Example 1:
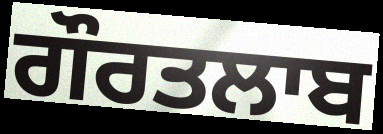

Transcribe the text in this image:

ਗੌਰਤਲਾਬ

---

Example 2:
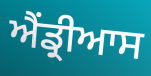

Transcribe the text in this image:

ਐਂਡ੍ਰੀਆਸ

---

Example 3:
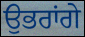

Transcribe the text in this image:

ਉਭਰਾਂਗੇ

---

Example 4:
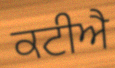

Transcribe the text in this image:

ਕਟੀਐ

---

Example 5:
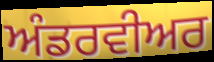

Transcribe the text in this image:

ਅੰਡਰਵੀਅਰ